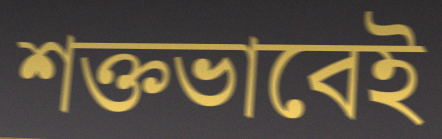
শক্তভাবেই